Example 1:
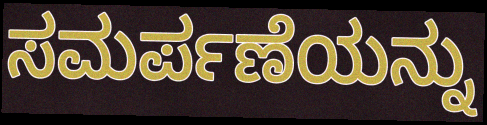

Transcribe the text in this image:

ಸಮರ್ಪಣೆಯನ್ನು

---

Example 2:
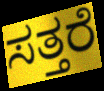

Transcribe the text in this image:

ಸತ್ತರೆ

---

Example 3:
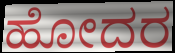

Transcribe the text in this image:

ಹೋದರ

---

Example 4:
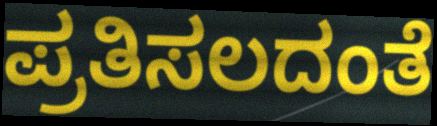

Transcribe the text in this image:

ಪ್ರತಿಸಲದಂತೆ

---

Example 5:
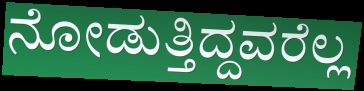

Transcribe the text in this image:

ನೋಡುತ್ತಿದ್ದವರೆಲ್ಲ